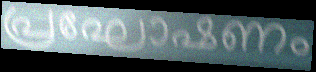
പ്രഘോഷണം